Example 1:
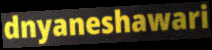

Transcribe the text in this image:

dnyaneshawari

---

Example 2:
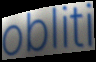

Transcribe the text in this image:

obliti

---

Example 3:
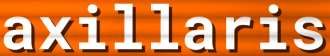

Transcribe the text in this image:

axillaris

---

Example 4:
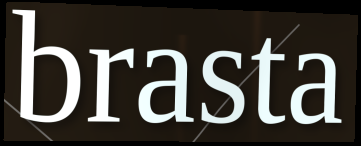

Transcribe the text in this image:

brasta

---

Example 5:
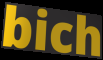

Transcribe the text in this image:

bich